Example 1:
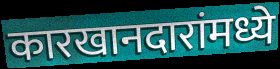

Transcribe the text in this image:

कारखानदारांमध्ये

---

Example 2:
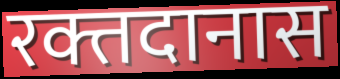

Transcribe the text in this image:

रक्तदानास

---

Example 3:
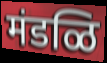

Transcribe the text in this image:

मंडळि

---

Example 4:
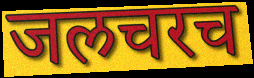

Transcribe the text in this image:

जलचरच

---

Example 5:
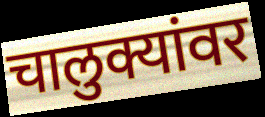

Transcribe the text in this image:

चालुक्यांवर